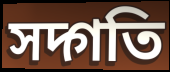
সদ্গতি